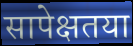
सापेक्षतया